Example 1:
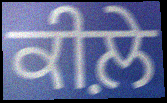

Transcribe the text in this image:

ਕੀਲ਼ੇ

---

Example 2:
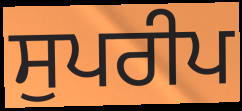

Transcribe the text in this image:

ਸੁਪਰੀਪ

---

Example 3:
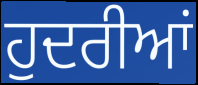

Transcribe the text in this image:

ਹੁਦਰੀਆਂ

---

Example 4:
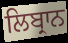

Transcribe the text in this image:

ਲਿਬ੍ਰਾਨ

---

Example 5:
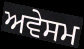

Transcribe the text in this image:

ਅਵੇਸਮ